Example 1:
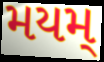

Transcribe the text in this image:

મયમ્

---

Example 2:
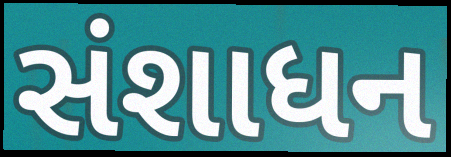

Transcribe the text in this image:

સંશાધન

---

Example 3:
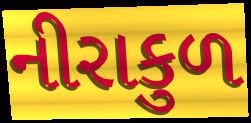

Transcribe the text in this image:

નીરાકુળ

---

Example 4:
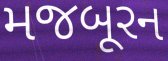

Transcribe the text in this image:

મજબૂરન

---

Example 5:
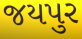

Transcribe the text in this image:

જયપુર